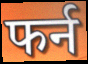
फर्न